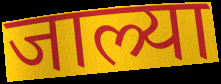
जाल्या